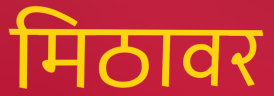
मिठावर